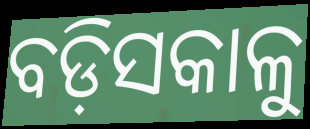
ବଡ଼ିସକାଳୁ